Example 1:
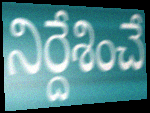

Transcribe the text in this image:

నిర్దేశించే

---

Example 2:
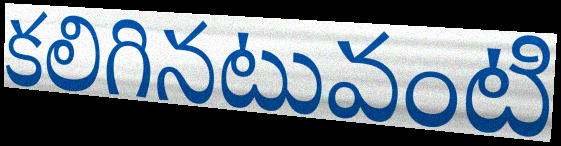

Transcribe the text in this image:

కలిగినటువంటి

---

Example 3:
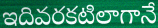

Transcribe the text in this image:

ఇదివరకటిలాగానే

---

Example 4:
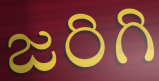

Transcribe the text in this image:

జరిగి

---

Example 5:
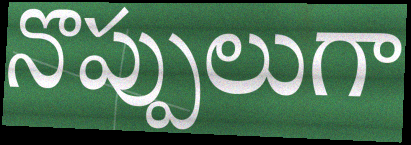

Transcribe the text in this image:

నొప్పులుగా